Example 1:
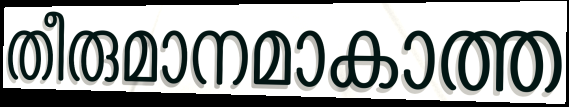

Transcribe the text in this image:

തീരുമാനമാകാത്ത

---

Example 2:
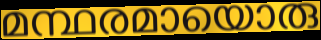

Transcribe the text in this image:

മന്ഥരമായൊരു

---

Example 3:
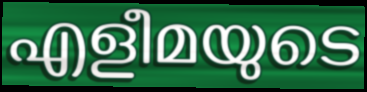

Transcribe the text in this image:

എളീമയുടെ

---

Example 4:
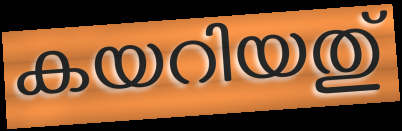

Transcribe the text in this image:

കയറിയതു്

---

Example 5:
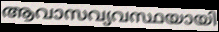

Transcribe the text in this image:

ആവാസവ്യവസ്ഥയായി